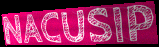
NACUSIP